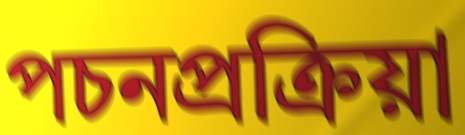
পচনপ্রক্রিয়া